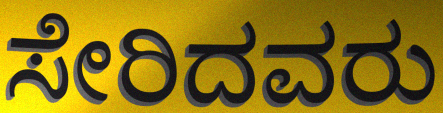
ಸೇರಿದವರು